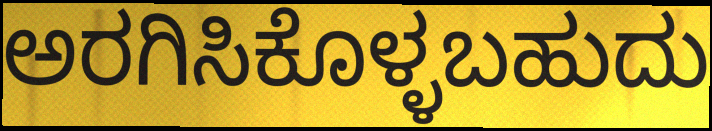
ಅರಗಿಸಿಕೊಳ್ಳಬಹುದು